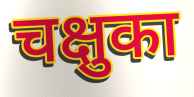
चक्षुका